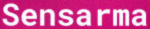
Sensarma